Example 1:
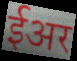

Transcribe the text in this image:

ईअर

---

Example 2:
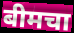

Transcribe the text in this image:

बीमचा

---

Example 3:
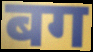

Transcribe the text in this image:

बग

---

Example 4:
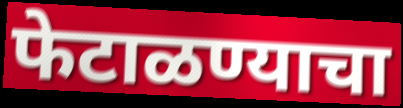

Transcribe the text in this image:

फेटाळण्याचा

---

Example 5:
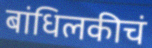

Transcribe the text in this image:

बांधिलकीचं